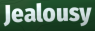
Jealousy